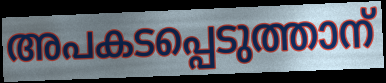
അപകടപ്പെടുത്താന്